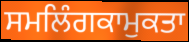
ਸਮਲਿੰਗਕਾਮੁਕਤਾ